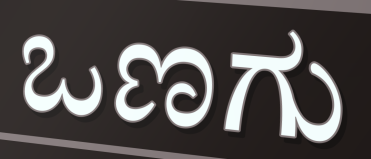
ಒಣಗು